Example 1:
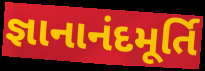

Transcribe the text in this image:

જ્ઞાનાનંદમૂર્તિ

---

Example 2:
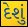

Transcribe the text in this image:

દેશું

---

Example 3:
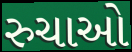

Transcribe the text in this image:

રુચાઓ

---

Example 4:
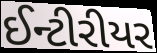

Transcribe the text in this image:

ઈન્ટીરીયર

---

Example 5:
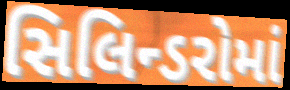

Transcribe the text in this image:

સિલિન્ડરોમાં